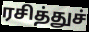
ரசித்துச்